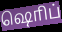
ஷெரிப்